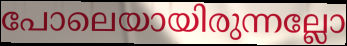
പോലെയായിരുന്നല്ലോ